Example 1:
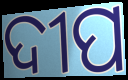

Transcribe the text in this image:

ଦୀପ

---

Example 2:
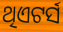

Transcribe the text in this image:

ଥିଏଟର୍ସ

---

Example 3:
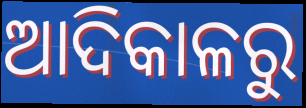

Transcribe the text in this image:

ଆଦିକାଳରୁ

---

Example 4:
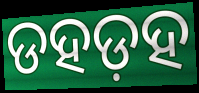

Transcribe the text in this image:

ଡହଡ଼ହ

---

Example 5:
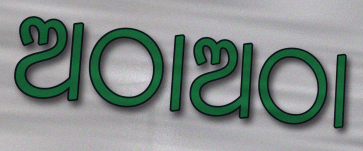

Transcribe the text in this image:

ଅଠାଅଠା